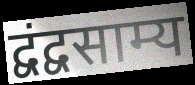
द्वंद्वसाम्य